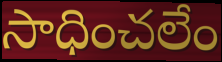
సాధించలేం